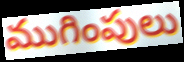
ముగింపులు